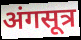
अंगसूत्र